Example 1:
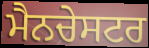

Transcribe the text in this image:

ਮੈਨਚੇਸਟਰ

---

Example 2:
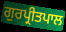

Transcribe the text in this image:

ਗੁਰਪ੍ਰੀਤਪਾਲ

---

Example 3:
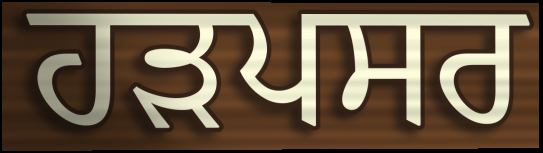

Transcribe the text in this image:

ਹੜਪਸਰ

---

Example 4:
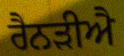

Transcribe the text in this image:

ਰੈਨੜੀਐ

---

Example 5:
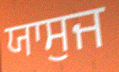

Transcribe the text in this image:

ਯਾਸੁਜ